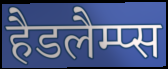
हैडलैम्प्स